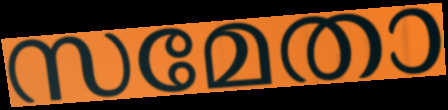
സമേതാ